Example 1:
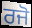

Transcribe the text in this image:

ਰਜੋ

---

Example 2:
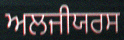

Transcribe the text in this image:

ਅਲਜੀਯਰਸ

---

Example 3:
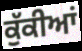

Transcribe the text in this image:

ਕੁੱਕੀਆਂ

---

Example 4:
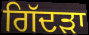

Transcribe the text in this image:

ਗਿੱਦੜਾ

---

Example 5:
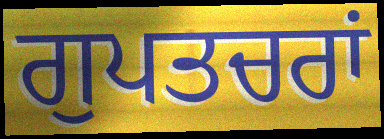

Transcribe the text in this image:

ਗੁਪਤਚਰਾਂ